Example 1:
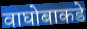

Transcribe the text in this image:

वाघोबाकडे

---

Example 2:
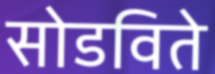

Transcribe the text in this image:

सोडविते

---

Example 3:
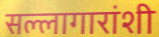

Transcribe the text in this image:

सल्लागारांशी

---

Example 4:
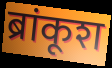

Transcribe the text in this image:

ब्रांकूश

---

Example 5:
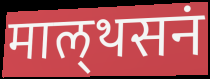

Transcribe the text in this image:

माल्थसनं